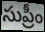
సుప్రీం